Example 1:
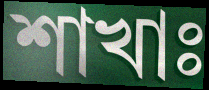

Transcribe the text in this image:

শাখাঃ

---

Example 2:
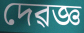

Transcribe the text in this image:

দেৱজ্ঞ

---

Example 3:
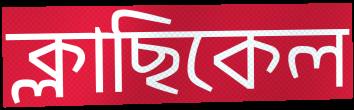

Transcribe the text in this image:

ক্লাছিকেল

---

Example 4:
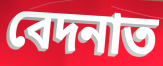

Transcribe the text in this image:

বেদনাত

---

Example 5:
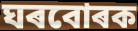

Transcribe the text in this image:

ঘৰবোৰক